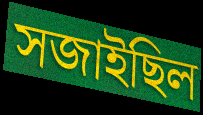
সজাইছিল